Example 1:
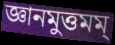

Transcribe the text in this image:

জ্ঞানমুত্তমম্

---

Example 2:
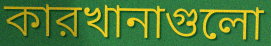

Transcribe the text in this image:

কারখানাগুলো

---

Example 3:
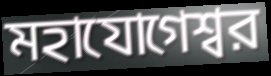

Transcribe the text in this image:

মহাযোগেশ্বর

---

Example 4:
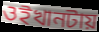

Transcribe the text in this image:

ওইখানটায়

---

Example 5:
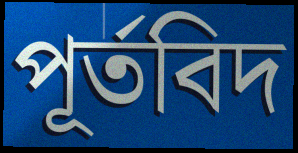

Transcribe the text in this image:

পূর্তবিদ